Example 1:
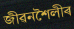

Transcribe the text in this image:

জীৱনশৈলীৰ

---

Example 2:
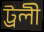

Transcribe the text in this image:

ট্ৰলী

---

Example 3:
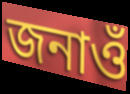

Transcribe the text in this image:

জনাওঁ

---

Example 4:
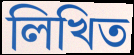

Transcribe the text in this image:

লিখিত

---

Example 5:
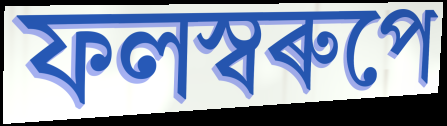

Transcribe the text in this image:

ফলস্বৰুপে